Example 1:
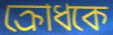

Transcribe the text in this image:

ক্রোধকে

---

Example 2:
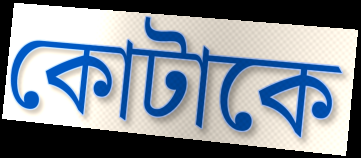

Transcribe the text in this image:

কোটাকে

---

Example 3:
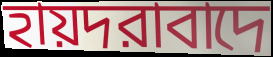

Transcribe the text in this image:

হায়দরাবাদে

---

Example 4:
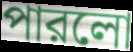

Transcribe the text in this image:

পারলো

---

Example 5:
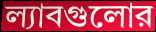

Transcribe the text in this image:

ল্যাবগুলোর